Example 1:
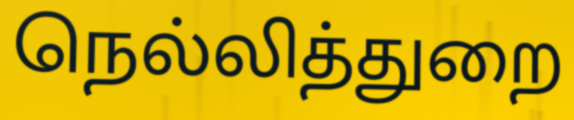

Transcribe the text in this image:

நெல்லித்துறை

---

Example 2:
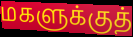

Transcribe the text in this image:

மகளுக்குத்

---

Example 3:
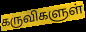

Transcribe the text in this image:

கருவிகளுள்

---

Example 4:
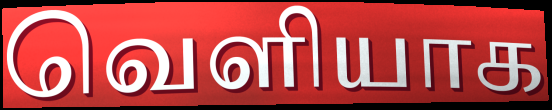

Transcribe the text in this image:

வெளியாக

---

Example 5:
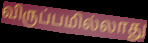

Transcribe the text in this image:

விருப்பமில்லாது